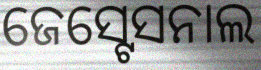
ଜେସ୍ଟେସନାଲ